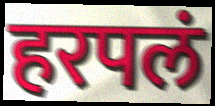
हरपलं